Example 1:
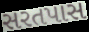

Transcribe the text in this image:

સરતપાસ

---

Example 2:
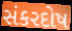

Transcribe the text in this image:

સંકરદોષ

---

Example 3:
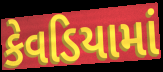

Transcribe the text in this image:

કેવડિયામાં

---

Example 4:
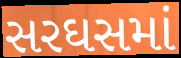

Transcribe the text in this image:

સરઘસમાં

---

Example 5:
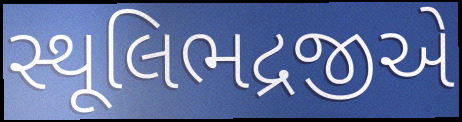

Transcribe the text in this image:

સ્થૂલિભદ્રજીએ